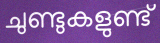
ചുണ്ടുകളുണ്ട്